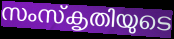
സംസ്‌കൃതിയുടെ